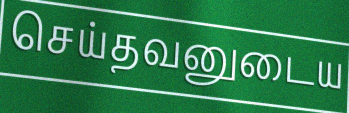
செய்தவனுடைய